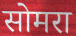
सोमरा